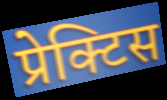
प्रेक्टिस